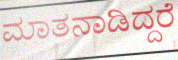
ಮಾತನಾಡಿದ್ದರೆ